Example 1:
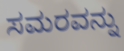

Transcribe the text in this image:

ಸಮರವನ್ನು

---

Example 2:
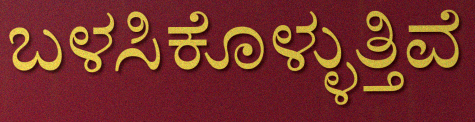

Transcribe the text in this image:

ಬಳಸಿಕೊಳ್ಳುತ್ತಿವೆ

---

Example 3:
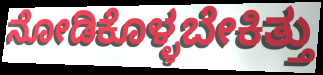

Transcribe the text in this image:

ನೋಡಿಕೊಳ್ಳಬೇಕಿತ್ತು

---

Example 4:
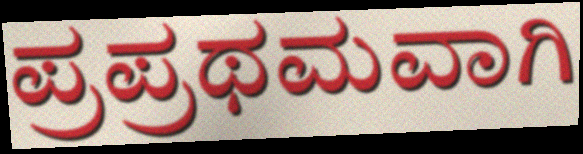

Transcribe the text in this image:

ಪ್ರಪ್ರಥಮವಾಗಿ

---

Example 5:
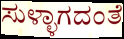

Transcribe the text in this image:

ಸುಳ್ಳಾಗದಂತೆ